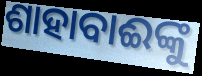
ଶାହାବାଈଙ୍କୁ